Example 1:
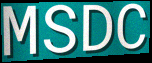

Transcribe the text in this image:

MSDC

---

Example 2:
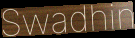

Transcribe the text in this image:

Swadhin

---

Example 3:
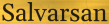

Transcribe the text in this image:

Salvarsan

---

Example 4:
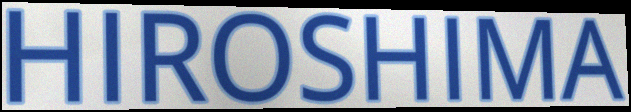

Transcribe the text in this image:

HIROSHIMA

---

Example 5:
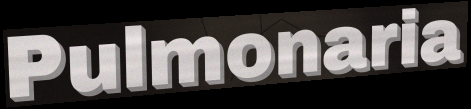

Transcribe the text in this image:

Pulmonaria